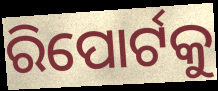
ରିପୋର୍ଟକୁ